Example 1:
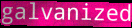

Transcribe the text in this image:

galvanized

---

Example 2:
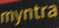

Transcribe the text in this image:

myntra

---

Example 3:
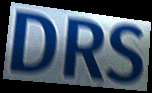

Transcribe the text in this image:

DRS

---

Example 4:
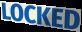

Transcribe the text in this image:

LOCKED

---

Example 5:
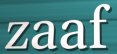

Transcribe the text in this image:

zaaf